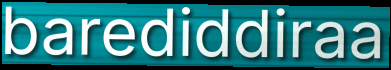
barediddiraa